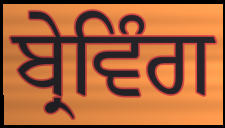
ਬ੍ਰੇਵਿੰਗ